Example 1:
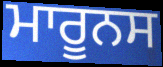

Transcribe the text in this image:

ਮਾਰੂਨਸ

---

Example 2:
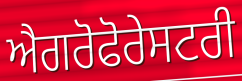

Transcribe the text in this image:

ਐਗਰੋਫੋਰੇਸਟਰੀ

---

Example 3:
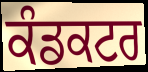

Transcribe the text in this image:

ਕੰਡਕਟਰ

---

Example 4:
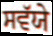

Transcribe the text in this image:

ਸਵੱਯੇ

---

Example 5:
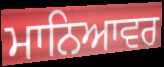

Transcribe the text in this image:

ਮਾਨਿਆਵਰ